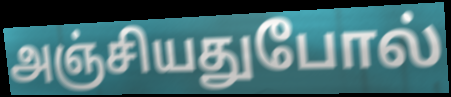
அஞ்சியதுபோல்